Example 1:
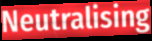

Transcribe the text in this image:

Neutralising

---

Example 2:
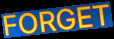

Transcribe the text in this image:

FORGET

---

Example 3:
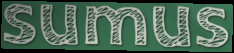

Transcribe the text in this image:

sumus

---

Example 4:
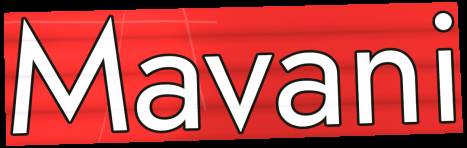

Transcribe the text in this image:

Mavani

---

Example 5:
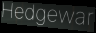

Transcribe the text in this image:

Hedgewar